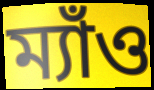
ম্যাঁও